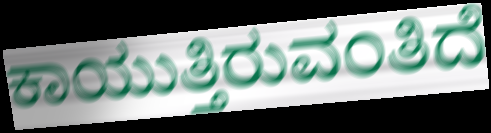
ಕಾಯುತ್ತಿರುವಂತಿದೆ